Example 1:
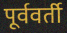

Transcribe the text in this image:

पूर्ववर्ती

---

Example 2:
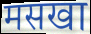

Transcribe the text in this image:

मसखा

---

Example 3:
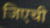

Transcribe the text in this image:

जिएची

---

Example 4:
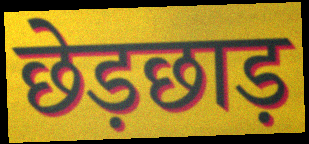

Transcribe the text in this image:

छेड़छाड़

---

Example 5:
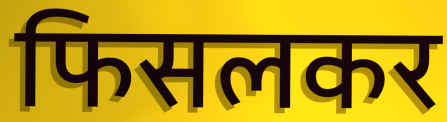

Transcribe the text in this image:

फिसलकर